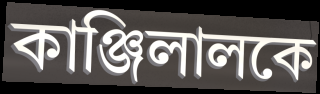
কাঞ্জিলালকে